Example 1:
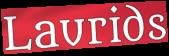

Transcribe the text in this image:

Laurids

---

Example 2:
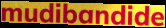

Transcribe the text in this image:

mudibandide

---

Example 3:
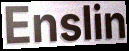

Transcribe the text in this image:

Enslin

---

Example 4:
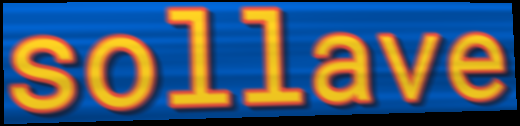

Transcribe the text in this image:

sollave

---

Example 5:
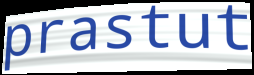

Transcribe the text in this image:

prastut